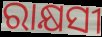
ରାକ୍ଷସୀ